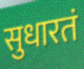
सुधारतं